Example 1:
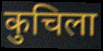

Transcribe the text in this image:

कुचिला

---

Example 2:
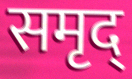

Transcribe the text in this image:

समृद्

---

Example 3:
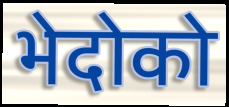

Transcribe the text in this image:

भेदोको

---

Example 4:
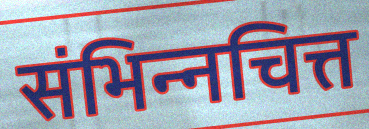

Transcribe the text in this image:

संभिन्नचित्त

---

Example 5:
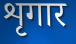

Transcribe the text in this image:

शृगार